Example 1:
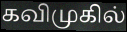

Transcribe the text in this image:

கவிமுகில்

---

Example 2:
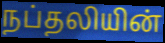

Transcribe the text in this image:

நப்தலியின்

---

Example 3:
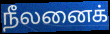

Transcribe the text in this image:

நீலனைக்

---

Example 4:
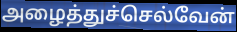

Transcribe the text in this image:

அழைத்துச்செல்வேன்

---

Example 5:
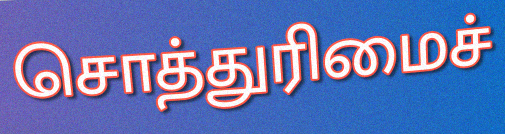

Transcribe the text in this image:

சொத்துரிமைச்